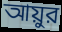
আয়ুর